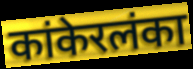
कांकेरलंका